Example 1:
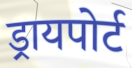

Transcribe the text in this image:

ड्रायपोर्ट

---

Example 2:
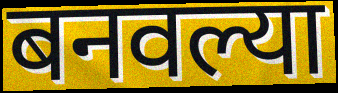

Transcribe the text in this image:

बनवल्या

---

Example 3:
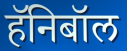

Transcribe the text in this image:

हॅनिबॉल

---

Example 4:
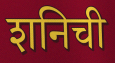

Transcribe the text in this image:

शनिची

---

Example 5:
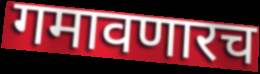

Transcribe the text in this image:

गमावणारच